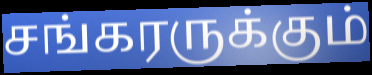
சங்கரருக்கும்